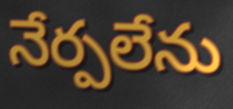
నేర్పలేను